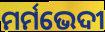
ମର୍ମଭେଦୀ